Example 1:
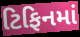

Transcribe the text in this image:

ટિફિનમાં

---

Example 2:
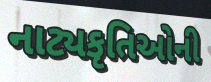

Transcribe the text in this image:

નાટ્યકૃતિઓની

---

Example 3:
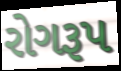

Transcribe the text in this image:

રોગરૂપ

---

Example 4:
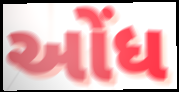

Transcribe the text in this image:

ઓંધ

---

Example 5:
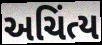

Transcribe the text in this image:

અચિંત્ય